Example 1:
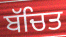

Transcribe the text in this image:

ਬੱਚਿਤ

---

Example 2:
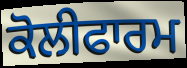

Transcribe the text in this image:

ਕੋਲੀਫਾਰਮ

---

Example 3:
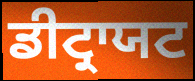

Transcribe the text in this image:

ਡੀਟ੍ਰਾਯਟ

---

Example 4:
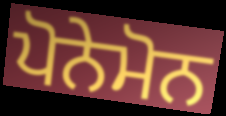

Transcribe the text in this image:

ਪੋਨੇਮੋਨ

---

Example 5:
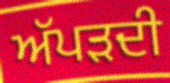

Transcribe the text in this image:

ਅੱਪੜਦੀ